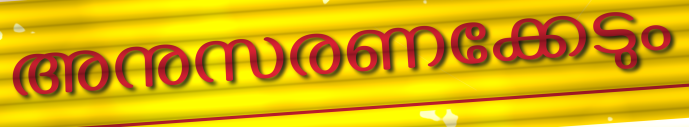
അനുസരണക്കേടും